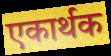
एकार्थक